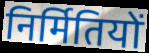
निर्मितियों